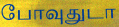
போவுதுடா